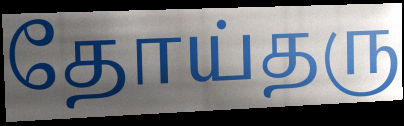
தோய்தரு